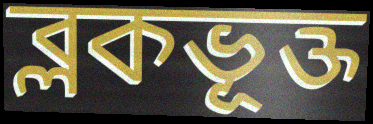
ব্লকভূক্ত